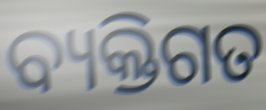
ବ୍ୟକ୍ତିଗତ